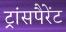
ट्रांसपैरेंट